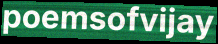
poemsofvijay